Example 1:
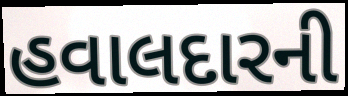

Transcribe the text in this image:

હવાલદારની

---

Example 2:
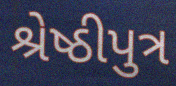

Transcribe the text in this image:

શ્રેષ્ઠીપુત્ર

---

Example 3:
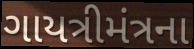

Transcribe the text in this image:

ગાયત્રીમંત્રના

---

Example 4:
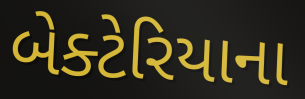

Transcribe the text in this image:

બેક્ટેરિયાના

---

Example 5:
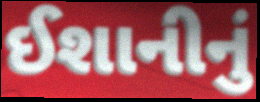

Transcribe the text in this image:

ઈશાનીનું